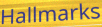
Hallmarks